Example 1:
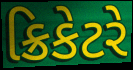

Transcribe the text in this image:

ક્રિકેટરે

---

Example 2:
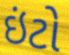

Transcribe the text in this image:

ઇંટો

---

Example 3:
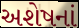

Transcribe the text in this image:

અશેષનાં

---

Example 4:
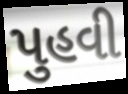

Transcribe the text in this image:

પુહવી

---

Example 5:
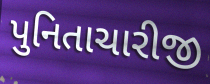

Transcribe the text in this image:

પુનિતાચારીજી